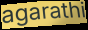
agarathi